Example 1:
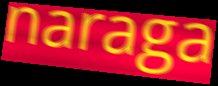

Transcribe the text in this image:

naraga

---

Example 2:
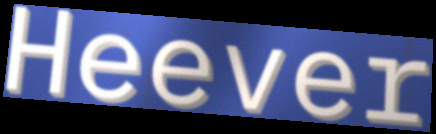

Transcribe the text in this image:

Heever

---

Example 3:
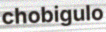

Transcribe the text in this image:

chobigulo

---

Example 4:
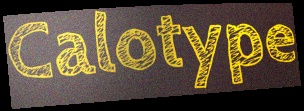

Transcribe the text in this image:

Calotype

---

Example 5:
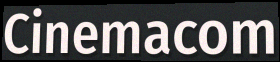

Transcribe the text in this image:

Cinemacom